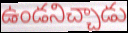
ఉండనిచ్చాడు